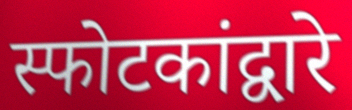
स्फोटकांद्वारे